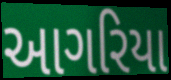
આગરિયા